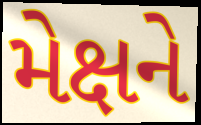
મેક્ષને